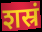
शस्रं